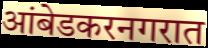
आंबेडकरनगरात